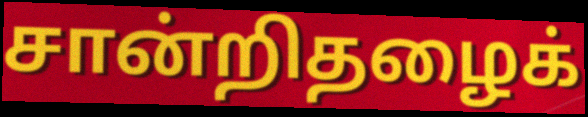
சான்றிதழைக்